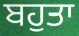
ਬਹੁਤਾ